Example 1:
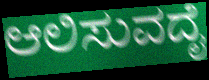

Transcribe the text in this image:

ಆಲಿಸುವದೈ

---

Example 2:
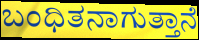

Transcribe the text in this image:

ಬಂಧಿತನಾಗುತ್ತಾನೆ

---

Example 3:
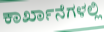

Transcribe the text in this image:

ಕಾರ್ಖಾನೆಗಳಲ್ಲಿ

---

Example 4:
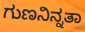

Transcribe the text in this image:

ಗುಣನಿನ್ನತಾ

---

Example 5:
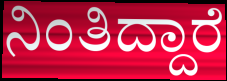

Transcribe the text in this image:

ನಿಂತಿದ್ದಾರೆ